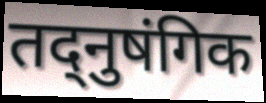
तद्नुषंगिक